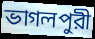
ভাগলপুরী